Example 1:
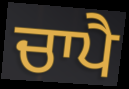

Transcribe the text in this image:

ਚਾਪੈ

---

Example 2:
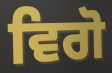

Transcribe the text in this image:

ਵਿਗੋ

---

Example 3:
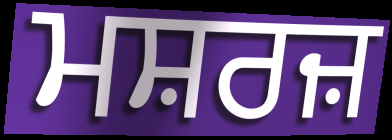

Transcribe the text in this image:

ਮਸ਼ਰਜ਼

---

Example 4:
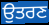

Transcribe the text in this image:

ਉਤਰਣ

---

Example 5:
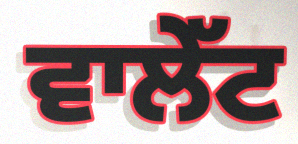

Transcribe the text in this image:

ਵਾਲੇੱਟ